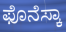
ಫೊನೆಸ್ಕಾ